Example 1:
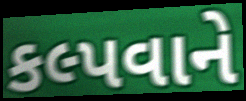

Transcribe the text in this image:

કલ્પવાને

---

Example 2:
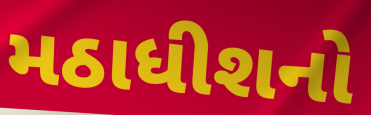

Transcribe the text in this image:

મઠાધીશનો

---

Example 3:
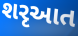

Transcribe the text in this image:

શરૃઆત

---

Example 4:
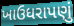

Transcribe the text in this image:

ખાઉધરાપણું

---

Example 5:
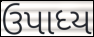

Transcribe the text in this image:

ઉપાધ્ય